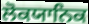
ਲੋਕਯਾਨਿਕ